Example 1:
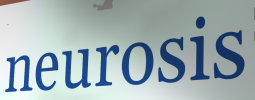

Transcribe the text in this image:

neurosis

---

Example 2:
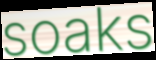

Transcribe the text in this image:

soaks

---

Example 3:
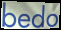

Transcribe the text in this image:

bedo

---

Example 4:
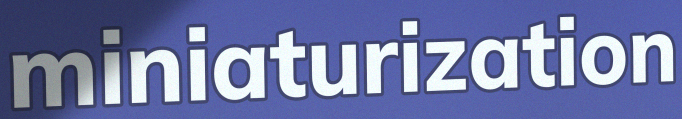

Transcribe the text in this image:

miniaturization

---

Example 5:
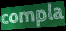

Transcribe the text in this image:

compla